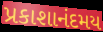
પ્રકાશાનંદમય